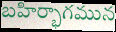
బహిర్భాగమున